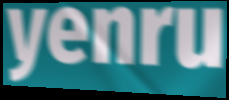
yenru